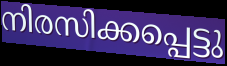
നിരസിക്കപ്പെട്ടു